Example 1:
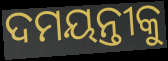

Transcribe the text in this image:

ଦମୟନ୍ତୀକୁ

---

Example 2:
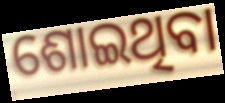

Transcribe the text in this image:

ଶୋଇଥିବା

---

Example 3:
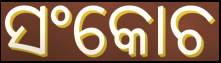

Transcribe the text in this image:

ସଂକୋଚ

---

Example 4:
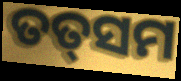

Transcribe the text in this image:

ତତ୍‌ସମ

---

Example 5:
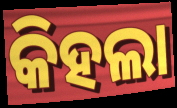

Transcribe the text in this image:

କିହଲା